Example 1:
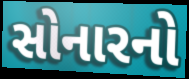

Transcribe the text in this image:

સોનારનો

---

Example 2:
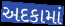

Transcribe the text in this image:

અદકામાં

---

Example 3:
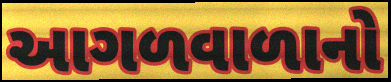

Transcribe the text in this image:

આગળવાળાનો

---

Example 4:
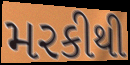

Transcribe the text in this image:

મરકીથી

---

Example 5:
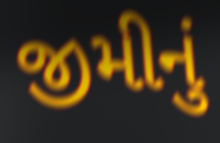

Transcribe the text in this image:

જીમીનું